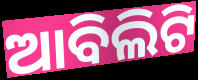
ଆବିଲିଟି